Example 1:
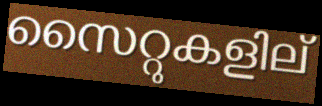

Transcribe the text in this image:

സൈറ്റുകളില്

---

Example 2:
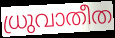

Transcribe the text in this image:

ധ്രുവാതീത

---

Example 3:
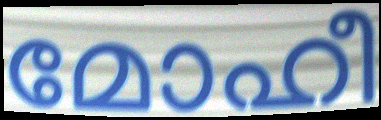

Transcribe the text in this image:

മോഹീ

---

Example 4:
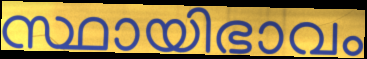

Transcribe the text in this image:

സ്ഥായിഭാവം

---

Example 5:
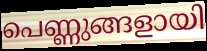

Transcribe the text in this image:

പെണ്ണുങ്ങളായി